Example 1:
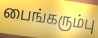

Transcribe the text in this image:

பைங்கரும்பு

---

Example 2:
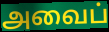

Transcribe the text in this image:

அவைப்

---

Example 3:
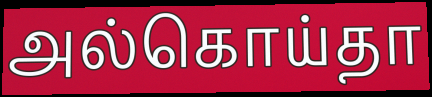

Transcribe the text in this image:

அல்கொய்தா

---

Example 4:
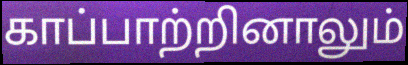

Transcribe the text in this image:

காப்பாற்றினாலும்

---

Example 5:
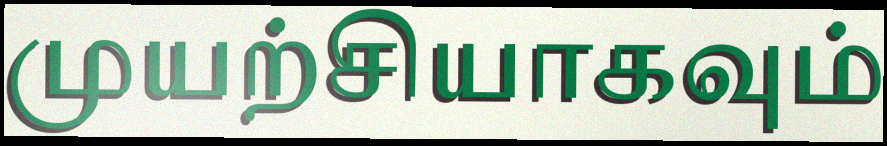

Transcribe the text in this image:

முயற்சியாகவும்